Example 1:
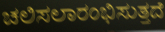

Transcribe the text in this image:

ಚಲಿಸಲಾರಂಭಿಸುತ್ತದೆ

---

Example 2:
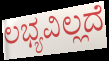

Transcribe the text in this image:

ಲಭ್ಯವಿಲ್ಲದೆ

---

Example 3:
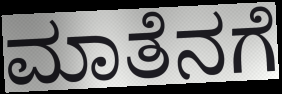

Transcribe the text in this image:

ಮಾತೆನಗೆ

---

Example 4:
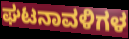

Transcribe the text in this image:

ಘಟನಾವಳಿಗಳ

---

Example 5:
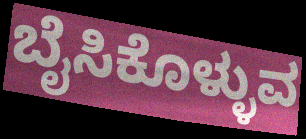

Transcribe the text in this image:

ಬೈಸಿಕೊಳ್ಳುವ